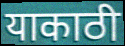
याकाठी